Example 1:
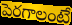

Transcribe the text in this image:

పెరగాలంటే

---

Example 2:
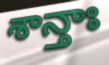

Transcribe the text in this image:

శాన్తాః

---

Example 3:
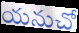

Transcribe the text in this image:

యనుచో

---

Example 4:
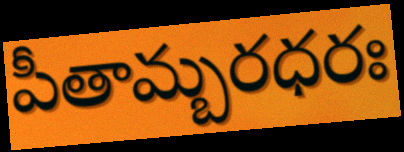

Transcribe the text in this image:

పీతామ్బరధరః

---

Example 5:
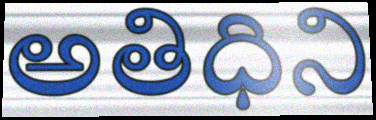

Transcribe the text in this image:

అతిధిని